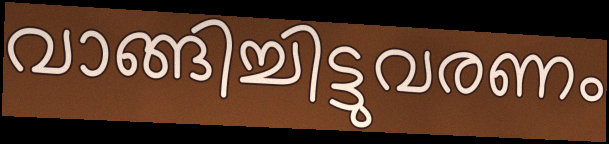
വാങ്ങിച്ചിട്ടുവരണം